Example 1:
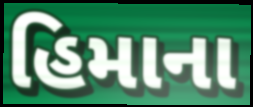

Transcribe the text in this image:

હિમાના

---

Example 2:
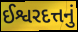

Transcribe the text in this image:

ઈશ્વરદત્તનું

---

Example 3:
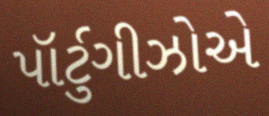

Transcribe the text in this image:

પૉર્ટુગીઝોએ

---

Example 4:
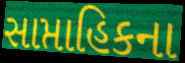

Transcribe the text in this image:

સાપ્તાહિકના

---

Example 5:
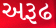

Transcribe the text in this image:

અરૂઢ